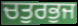
ਚਤੁਰਭੁਜ